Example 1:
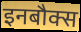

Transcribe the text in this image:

इनबौक्स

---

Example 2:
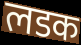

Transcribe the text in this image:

लडक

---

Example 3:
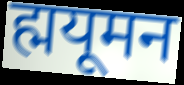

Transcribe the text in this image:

ह्मयूमन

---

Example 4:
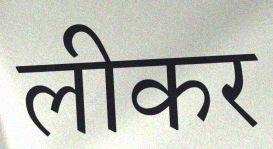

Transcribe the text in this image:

लीकर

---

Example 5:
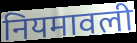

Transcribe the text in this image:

नियमावली